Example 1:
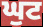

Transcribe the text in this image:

ਘੁਟ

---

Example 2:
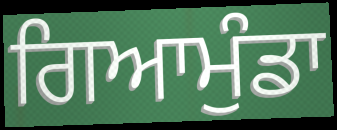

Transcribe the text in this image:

ਗਿਆਮੁੰਡਾ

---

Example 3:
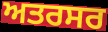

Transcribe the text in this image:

ਅਤਰਸਰ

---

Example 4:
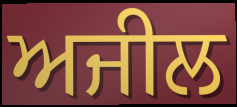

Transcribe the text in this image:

ਅਜੀਲ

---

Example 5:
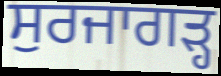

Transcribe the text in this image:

ਸੁਰਜਾਗੜ੍ਹ